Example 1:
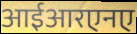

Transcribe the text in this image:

आईआरएनए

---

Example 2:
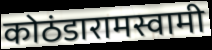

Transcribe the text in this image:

कोठंडारामस्वामी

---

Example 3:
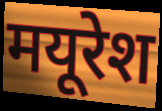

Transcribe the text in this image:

मयूरेश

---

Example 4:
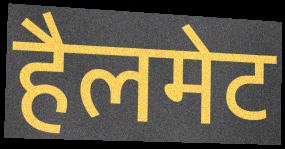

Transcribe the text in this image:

हैलमेट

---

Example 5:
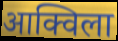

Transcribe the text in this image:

आक्विला